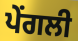
ਪੇਂਗਲੀ